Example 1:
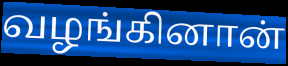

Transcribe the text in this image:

வழங்கினான்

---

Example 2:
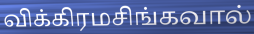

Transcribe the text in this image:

விக்கிரமசிங்கவால்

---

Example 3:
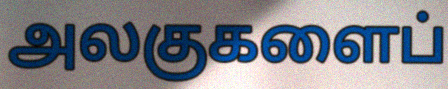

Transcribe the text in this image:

அலகுகளைப்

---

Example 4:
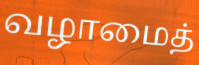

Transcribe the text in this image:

வழாமைத்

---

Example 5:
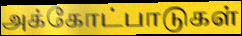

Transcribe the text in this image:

அக்கோட்பாடுகள்